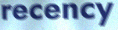
recency